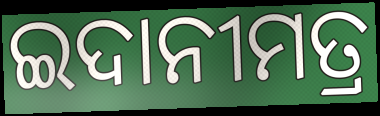
ଇଦାନୀମତ୍ର